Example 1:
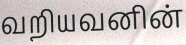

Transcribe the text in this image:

வறியவனின்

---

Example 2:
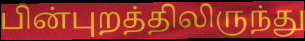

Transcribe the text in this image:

பின்புறத்திலிருந்து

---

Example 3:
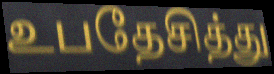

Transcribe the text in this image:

உபதேசித்து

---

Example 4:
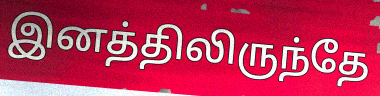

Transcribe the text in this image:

இனத்திலிருந்தே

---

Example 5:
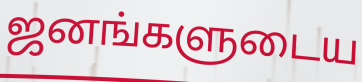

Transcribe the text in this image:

ஜனங்களுடைய